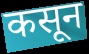
कसून